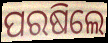
ପରଷିଲେ